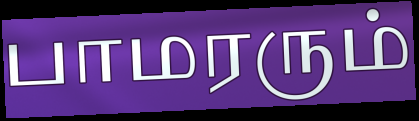
பாமரரும்